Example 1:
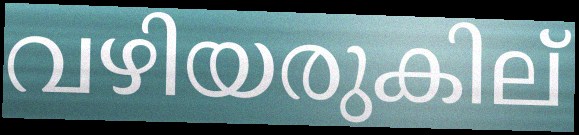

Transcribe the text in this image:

വഴിയരുകില്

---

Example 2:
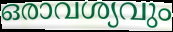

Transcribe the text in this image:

ഒരാവശ്യവും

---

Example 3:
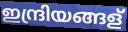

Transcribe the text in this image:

ഇന്ദ്രിയങ്ങള്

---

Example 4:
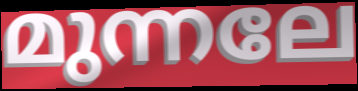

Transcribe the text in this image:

മുന്നലേ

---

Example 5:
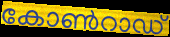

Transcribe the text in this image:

കോൺറാഡ്